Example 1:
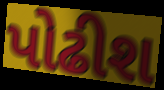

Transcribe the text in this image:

પોઢીશ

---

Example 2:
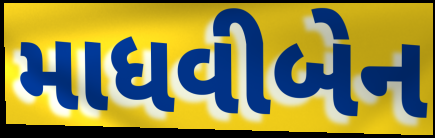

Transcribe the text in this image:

માધવીબેન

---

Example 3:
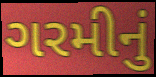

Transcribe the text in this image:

ગરમીનું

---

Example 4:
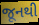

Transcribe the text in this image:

જૂનથી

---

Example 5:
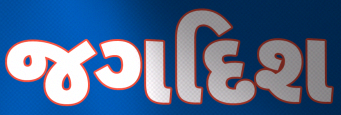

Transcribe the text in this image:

જગદિશ